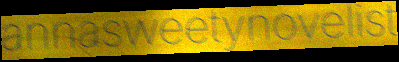
annasweetynovelist